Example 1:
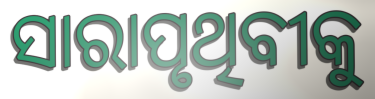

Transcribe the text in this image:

ସାରାପୃଥିବୀକୁ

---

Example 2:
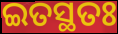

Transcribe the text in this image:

ଇତସ୍ଥତଃ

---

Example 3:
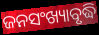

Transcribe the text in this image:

ଜନସଂଖ୍ୟାବୃଦ୍ଧି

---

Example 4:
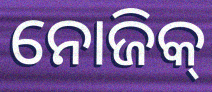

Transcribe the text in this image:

ନୋଜିକ୍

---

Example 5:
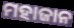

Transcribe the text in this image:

ମହାଜାନ